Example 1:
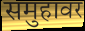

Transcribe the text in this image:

समुहावर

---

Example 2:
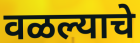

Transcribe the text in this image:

वळल्याचे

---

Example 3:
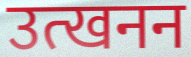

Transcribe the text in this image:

उत्‍खनन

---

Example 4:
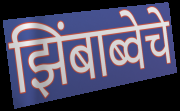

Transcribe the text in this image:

झिंबाब्वेचे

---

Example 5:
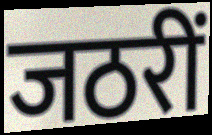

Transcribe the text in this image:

जठरीं